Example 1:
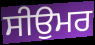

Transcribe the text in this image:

ਸੀਉਮਰ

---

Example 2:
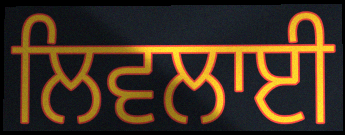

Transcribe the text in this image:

ਲਿਵਲਾਈ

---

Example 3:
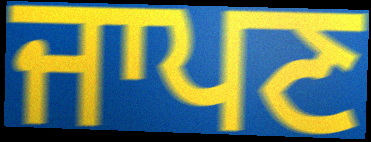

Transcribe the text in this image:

ਜਾਪਣ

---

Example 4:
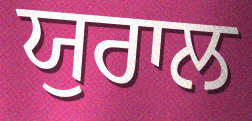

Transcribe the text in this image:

ਯੁਰਾਲ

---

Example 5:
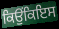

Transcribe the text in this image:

ਕਿਉਂਕਿਇਸ